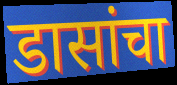
डासांचा